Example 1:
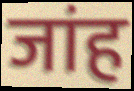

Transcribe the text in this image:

जांह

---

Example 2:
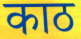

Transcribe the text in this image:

काठ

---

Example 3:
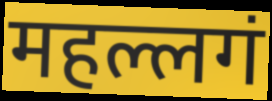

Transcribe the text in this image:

महल्लगं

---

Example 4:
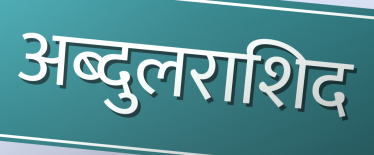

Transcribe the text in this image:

अब्दुलराशिद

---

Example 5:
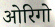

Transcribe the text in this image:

ओरिगो